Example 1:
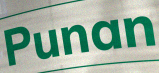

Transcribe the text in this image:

Punan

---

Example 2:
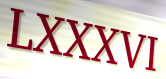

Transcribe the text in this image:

LXXXVI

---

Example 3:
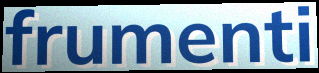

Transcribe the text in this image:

frumenti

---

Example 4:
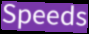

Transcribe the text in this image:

Speeds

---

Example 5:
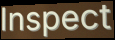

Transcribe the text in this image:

Inspect